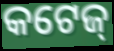
କଟେଜ୍